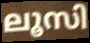
ലൂസി